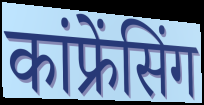
कांफ्रेंसिंग